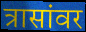
त्रासांवर